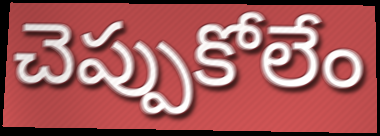
చెప్పుకోలేం